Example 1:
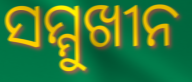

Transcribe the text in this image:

ସମ୍ମୁଖୀନ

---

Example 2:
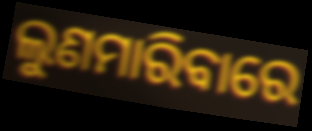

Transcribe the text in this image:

ଲୁଣମାରିବାରେ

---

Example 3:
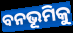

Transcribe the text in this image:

ବନଭୂମିକୁ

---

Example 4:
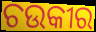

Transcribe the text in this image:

ଚଉକୀର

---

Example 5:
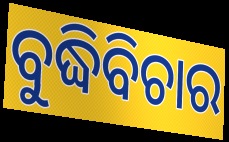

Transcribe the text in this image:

ବୁଦ୍ଧିବିଚାର